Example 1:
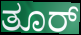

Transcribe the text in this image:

ತೂರ್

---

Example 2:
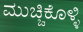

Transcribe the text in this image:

ಮುಚ್ಚಿಕೊಳ್ಳಿ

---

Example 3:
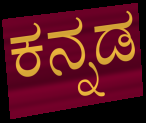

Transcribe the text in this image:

ಕನ್ನಡ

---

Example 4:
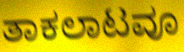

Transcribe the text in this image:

ತಾಕಲಾಟವೂ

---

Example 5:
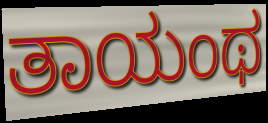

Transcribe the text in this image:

ತಾಯಂಥ